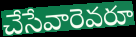
చేసేవారెవరూ